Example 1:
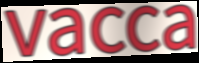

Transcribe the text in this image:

vacca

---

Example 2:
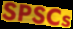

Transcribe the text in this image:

SPSCs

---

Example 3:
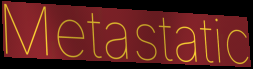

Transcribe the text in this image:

Metastatic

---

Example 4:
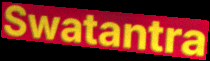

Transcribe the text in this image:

Swatantra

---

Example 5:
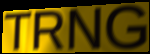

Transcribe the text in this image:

TRNG